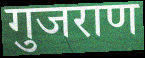
गुजराण